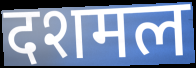
दशमल